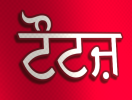
ਟੌਟਜ਼